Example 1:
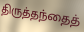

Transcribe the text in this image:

திருத்தந்தைத்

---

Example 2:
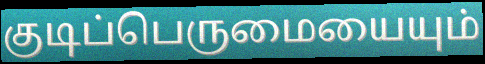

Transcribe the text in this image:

குடிப்பெருமையையும்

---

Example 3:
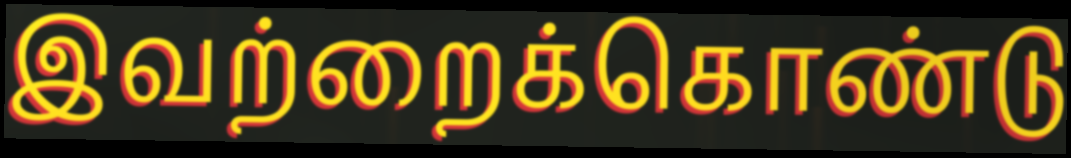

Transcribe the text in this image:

இவற்றைக்கொண்டு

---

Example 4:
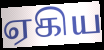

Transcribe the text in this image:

ஏகிய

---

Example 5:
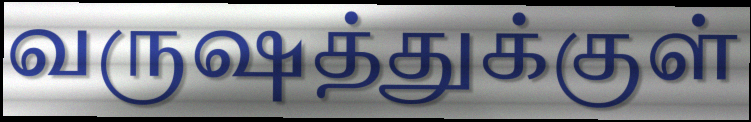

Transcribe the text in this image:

வருஷத்துக்குள்